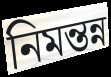
নিমন্তন্ন